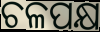
ଚଳପକ୍ଷ